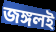
জঙ্গলই